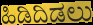
ಹಿಡಿದಿಡಲು